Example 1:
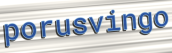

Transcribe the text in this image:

porusvingo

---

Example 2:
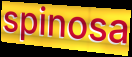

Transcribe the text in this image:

spinosa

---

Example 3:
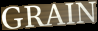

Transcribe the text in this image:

GRAIN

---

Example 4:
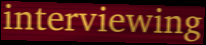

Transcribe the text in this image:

interviewing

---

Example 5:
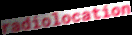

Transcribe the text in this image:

radiolocation